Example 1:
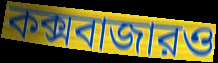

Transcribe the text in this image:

কক্সবাজারও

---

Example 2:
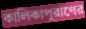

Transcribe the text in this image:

কালিকাপুরাণের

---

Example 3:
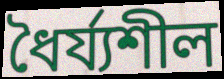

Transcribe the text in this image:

ধৈর্য্যশীল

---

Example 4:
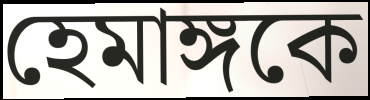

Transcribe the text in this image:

হেমাঙ্গকে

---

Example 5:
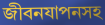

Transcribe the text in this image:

জীবনযাপনসহ